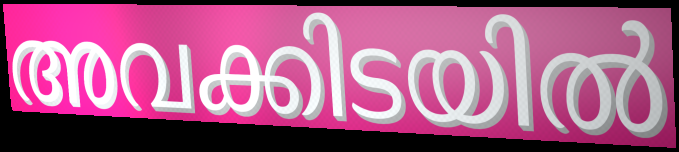
അവക്കിടയിൽ